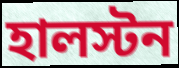
হালস্টন